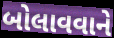
બોલાવવાને